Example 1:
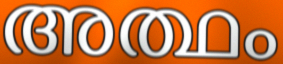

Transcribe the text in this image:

അത്ഥം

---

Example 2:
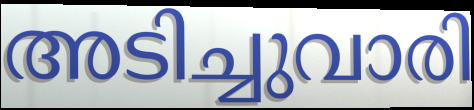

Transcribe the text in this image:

അടിച്ചുവാരി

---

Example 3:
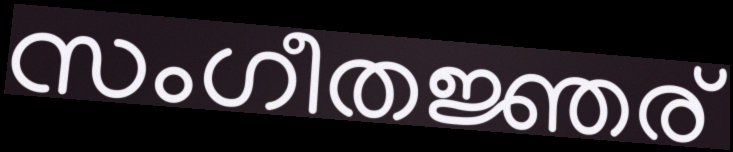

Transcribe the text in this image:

സംഗീതജ്ഞര്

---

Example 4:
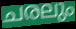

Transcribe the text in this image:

ചരലും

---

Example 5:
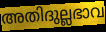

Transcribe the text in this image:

അതിദുല്ലഭാവ